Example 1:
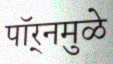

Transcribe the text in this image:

पॉर्नमुळे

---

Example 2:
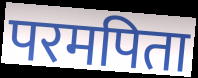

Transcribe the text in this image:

परमपिता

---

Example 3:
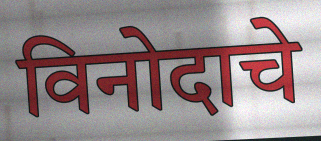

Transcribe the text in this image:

विनोदाचे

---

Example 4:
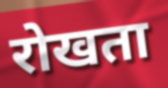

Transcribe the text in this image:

रोखता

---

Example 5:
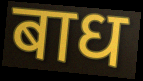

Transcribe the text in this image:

बाध